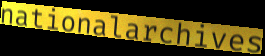
nationalarchives